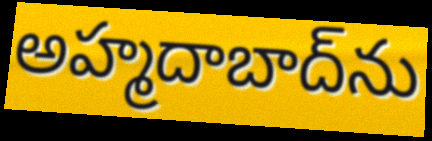
అహ్మదాబాద్‌ను